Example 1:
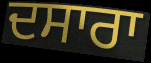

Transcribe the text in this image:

ਦਸਾਰਾ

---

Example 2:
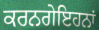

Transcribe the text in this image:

ਕਰਨਗੇਇਹਨਾਂ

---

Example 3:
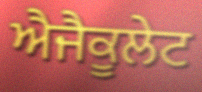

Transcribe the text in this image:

ਐਜੈਕੂਲੇਟ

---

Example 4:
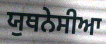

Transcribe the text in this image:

ਯੁਥਨੇਸੀਆ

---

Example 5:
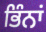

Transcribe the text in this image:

ਭਿੰਨਾਂ